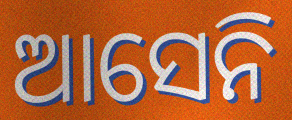
ଆସେନି